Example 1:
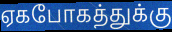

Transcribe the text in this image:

ஏகபோகத்துக்கு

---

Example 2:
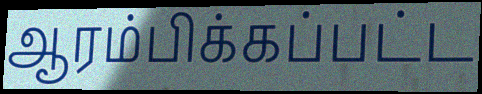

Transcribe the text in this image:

ஆரம்பிக்கப்பட்ட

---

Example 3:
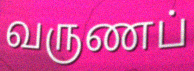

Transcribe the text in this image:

வருணப்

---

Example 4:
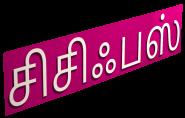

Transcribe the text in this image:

சிசிஃபஸ்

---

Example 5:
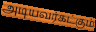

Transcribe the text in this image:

அடியவர்கட்கும்